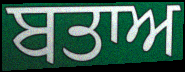
ਬਤਾਅ